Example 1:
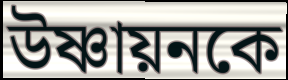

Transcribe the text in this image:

উষ্ণায়নকে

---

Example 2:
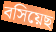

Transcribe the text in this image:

বসিয়েছ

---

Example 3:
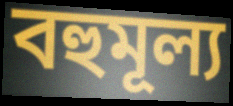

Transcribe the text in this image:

বহুমূল্য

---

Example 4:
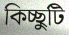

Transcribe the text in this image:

কিচ্ছুটি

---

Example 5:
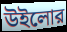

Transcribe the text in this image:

উইলোর